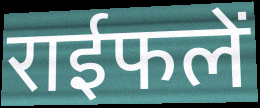
राईफलें